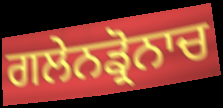
ਗਲੇਨਡ੍ਰੋਨਾਚ